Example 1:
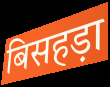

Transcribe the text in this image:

बिसहड़ा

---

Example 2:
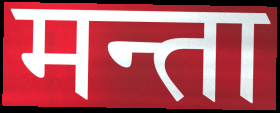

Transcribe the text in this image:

मन्ता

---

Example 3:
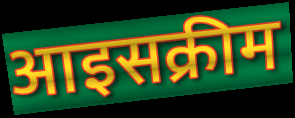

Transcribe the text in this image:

आइसक्रीम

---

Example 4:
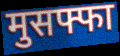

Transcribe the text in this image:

मुसफ्फा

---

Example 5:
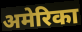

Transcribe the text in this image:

अमेरिका